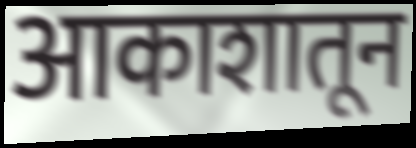
आकाशातून